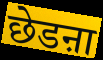
छेडऩा